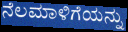
ನೆಲಮಾಳಿಗೆಯನ್ನು